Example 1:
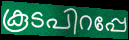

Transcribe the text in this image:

കൂടപിറപ്പേ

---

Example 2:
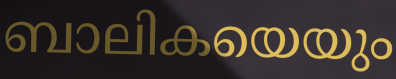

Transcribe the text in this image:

ബാലികയെയും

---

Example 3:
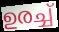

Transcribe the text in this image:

ഉരച്ച്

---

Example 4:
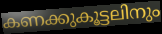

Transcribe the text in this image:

കണക്കുകൂട്ടലിനും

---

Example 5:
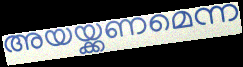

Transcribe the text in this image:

അയയ്ക്കണമെന്ന